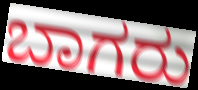
ಬಾಗರು